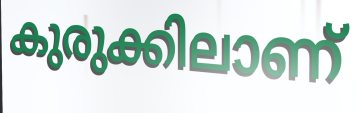
കുരുക്കിലാണ്